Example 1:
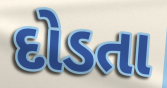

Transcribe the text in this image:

દોડતા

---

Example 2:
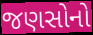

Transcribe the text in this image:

જણસોનો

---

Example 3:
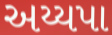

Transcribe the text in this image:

અય્યપા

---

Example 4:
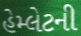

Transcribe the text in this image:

હેમ્લેટની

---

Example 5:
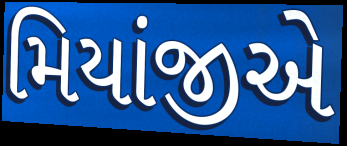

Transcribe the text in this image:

મિયાંજીએ